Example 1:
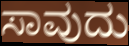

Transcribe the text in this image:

ಸಾವುದು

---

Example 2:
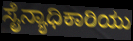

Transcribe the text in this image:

ಸೈನ್ಯಾಧಿಕಾರಿಯು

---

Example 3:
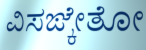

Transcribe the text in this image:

ವಿಸಙ್ಕೇತೋ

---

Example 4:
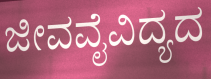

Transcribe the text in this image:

ಜೀವವೈವಿದ್ಯದ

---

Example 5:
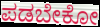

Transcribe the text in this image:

ಪಡಬೇಕೋ